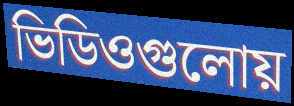
ভিডিওগুলোয়